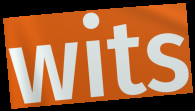
wits